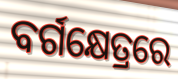
ବର୍ଗକ୍ଷେତ୍ରରେ